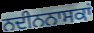
ਨਦੀਨਨਾਸਕਾਂ